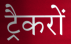
ट्रैकरों